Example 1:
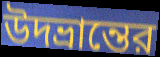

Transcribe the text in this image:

উদভ্রান্তের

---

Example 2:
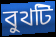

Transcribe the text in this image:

বুথটি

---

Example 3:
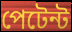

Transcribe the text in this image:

পেটেন্ট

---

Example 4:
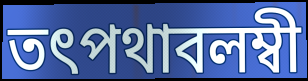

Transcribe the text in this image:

তৎপথাবলম্বী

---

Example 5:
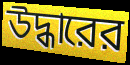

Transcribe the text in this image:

উদ্ধারের